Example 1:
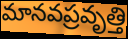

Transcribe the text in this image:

మానవప్రవృత్తి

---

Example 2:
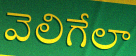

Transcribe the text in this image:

వెలిగేలా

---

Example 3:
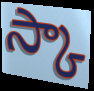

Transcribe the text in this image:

స్కా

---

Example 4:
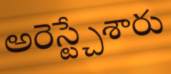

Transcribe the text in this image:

అరెస్ట్చేశారు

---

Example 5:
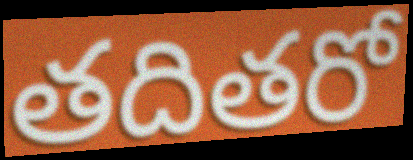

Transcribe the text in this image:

తదితరో